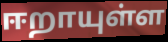
ஈறாயுள்ள